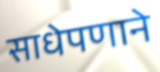
साधेपणाने